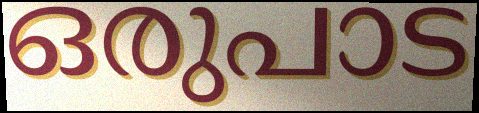
ഒരുപാട